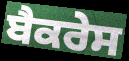
ਬੈਕਰੇਸ